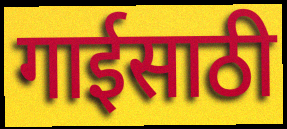
गाईसाठी